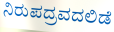
ನಿರುಪದ್ರವದಲಿಡೆ